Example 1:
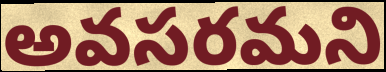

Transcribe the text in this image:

అవసరమని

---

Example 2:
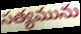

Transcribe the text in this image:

సత్యమును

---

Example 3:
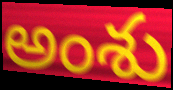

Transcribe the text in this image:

అంశు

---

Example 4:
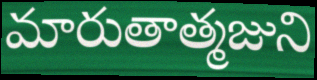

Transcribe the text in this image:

మారుతాత్మజుని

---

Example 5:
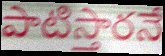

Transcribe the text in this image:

పాటిస్తారనే